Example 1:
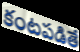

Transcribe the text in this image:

కంటపడితే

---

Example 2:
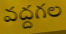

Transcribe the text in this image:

వద్దగల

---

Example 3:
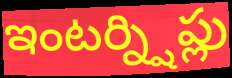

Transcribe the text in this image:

ఇంటర్న్షిప్లు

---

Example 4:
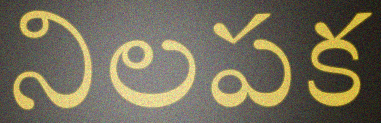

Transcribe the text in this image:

నిలపక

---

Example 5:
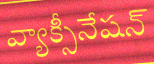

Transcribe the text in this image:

వ్యాక్సీనేషన్